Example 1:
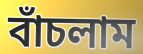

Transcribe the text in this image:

বাঁচলাম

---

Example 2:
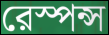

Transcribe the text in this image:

রেস্পন্স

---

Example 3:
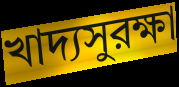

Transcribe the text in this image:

খাদ্যসুরক্ষা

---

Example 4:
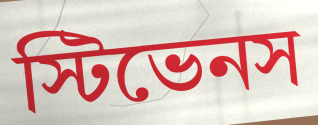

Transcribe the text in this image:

স্টিভেনস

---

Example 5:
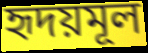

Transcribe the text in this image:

হৃদয়মূল